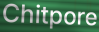
Chitpore